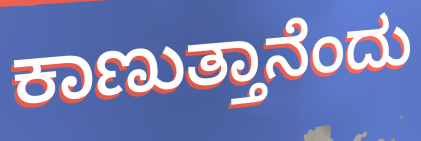
ಕಾಣುತ್ತಾನೆಂದು